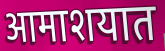
आमाशयात